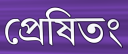
প্রেষিতং